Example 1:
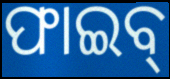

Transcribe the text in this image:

ଫାଇବ୍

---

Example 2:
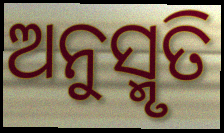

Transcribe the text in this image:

ଅନୁସ୍ମୃତି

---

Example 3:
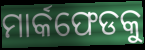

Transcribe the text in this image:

ମାର୍କଫେଡକୁ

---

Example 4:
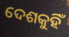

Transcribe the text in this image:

ଦେଶକୁହିଁ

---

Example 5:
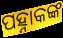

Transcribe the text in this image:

ପହ୍ନାକଙ୍କ